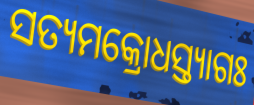
ସତ୍ୟମକ୍ରୋଧସ୍ତ୍ୟାଗଃ